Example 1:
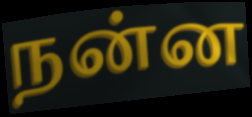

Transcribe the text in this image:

நன்ன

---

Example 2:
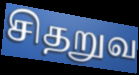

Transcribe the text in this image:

சிதறுவ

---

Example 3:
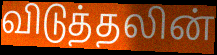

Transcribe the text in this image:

விடுத்தலின்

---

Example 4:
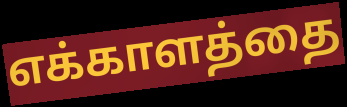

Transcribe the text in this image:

எக்காளத்தை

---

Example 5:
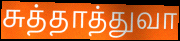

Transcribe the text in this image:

சுத்தாத்துவா